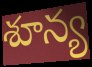
శూన్య